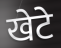
खेटे